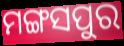
ମଙ୍ଗସପୁର